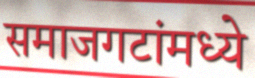
समाजगटांमध्ये